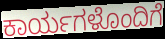
ಕಾರ್ಯಗಳೊಂದಿಗೆ